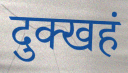
दुक्खहं